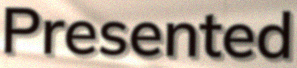
Presented